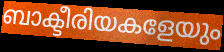
ബാക്ടീരിയകളേയും